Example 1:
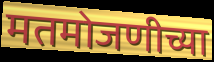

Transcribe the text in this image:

मतमोजणीच्या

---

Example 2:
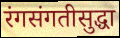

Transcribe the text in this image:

रंगसंगतीसुद्धा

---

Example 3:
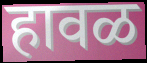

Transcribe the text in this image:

हावळ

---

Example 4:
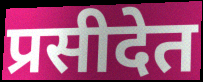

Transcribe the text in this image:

प्रसीदेत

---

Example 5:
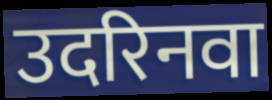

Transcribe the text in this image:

उदरिनवा